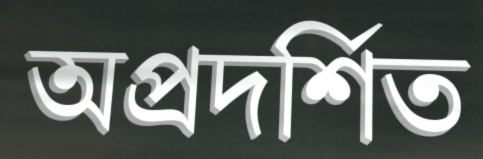
অপ্রদর্শিত